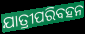
ଯାତ୍ରୀପରିବହନ